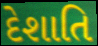
દેશાતિ